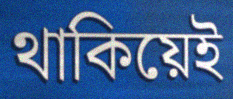
থাকিয়েই